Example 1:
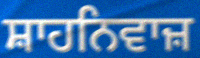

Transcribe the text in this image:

ਸ਼ਾਹਨਿਵਾਜ਼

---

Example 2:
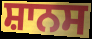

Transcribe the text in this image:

ਸ਼ਾਨਸ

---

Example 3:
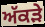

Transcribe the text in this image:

ਅੱਕੜੇ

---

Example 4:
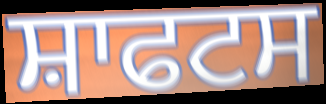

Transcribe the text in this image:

ਸ਼ਾਫਟਸ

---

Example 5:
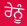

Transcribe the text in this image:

ਰੇਨੂੰ